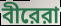
বীরেরা